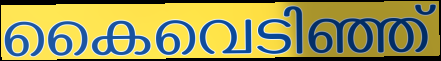
കൈവെടിഞ്ഞ്